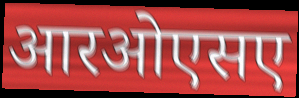
आरओएसए